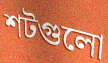
শটগুলো